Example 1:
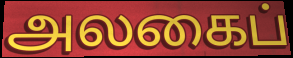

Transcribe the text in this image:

அலகைப்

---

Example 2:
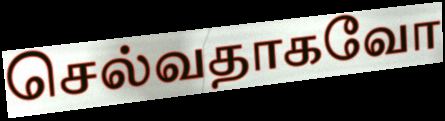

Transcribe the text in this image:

செல்வதாகவோ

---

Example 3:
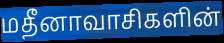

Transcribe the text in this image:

மதீனாவாசிகளின்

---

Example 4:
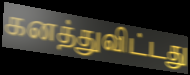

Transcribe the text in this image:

கனத்துவிட்டது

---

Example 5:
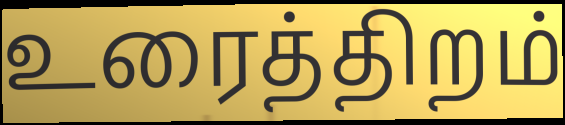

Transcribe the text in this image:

உரைத்திறம்